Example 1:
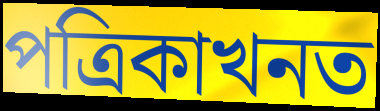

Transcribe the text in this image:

পত্ৰিকাখনত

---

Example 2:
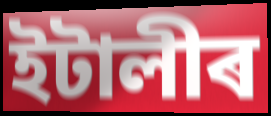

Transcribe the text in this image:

ইটালীৰ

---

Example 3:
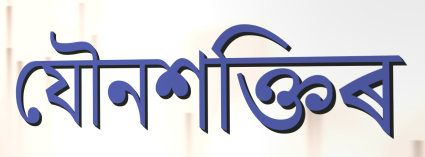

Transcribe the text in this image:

যৌনশক্তিৰ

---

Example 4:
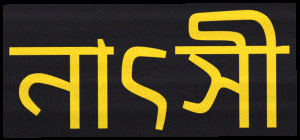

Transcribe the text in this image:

নাৎসী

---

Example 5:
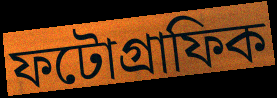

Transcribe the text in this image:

ফটোগ্ৰাফিক